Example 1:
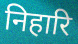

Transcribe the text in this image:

निहारि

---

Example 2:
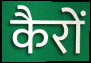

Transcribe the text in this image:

कैरों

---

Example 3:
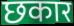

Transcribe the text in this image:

छकार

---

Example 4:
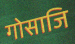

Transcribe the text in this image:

गोसाजि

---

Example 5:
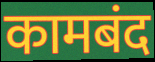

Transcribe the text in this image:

कामबंद